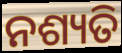
ନଶ୍ୟତି